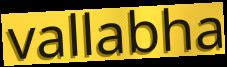
vallabha